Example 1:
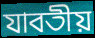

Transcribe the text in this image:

যাবতীয়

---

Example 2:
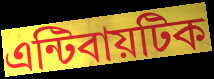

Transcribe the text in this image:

এন্টিবায়টিক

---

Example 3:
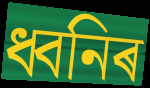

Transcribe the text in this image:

ধ্বনিৰ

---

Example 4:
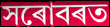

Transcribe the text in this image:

সৰোবৰত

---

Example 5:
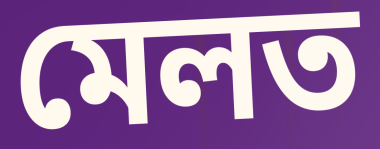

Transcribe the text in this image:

মেলত